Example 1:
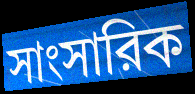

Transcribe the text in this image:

সাংসারিক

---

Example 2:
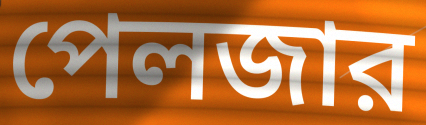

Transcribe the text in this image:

পেলজার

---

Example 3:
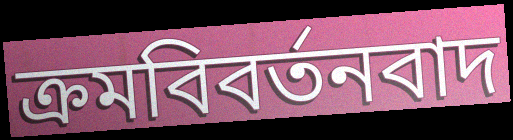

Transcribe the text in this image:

ক্রমবিবর্তনবাদ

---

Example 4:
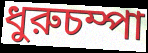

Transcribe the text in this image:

ধুরুচম্পা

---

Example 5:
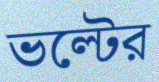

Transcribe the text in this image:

ভল্টের